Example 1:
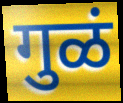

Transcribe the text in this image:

गुळं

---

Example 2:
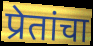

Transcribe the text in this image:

प्रेतांचा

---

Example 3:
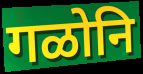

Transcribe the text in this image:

गळोनि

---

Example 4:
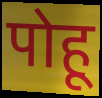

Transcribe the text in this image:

पोहू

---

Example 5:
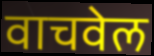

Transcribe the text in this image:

वाचवेल